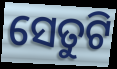
ସେତୁଟି